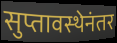
सुप्तावस्थेनंतर